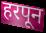
हरपून